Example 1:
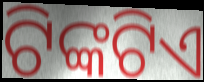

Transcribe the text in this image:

ଟିଙ୍କଟିଏ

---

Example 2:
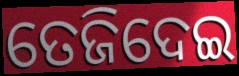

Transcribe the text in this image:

ତେଜିଦେଇ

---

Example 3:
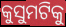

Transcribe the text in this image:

କୁସୁମଟିକୁ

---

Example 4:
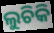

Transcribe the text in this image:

ଲୁଚିକି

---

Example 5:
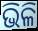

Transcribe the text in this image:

ଭିଳି